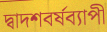
দ্বাদশবর্ষব্যাপী